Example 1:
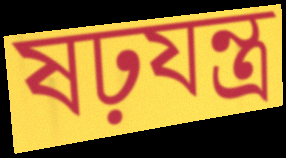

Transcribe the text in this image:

ষঢ়যন্ত্র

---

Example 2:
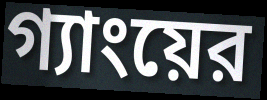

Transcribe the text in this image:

গ্যাংয়ের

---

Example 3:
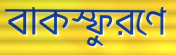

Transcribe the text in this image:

বাকস্ফুরণে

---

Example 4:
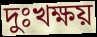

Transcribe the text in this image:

দুঃখক্ষয়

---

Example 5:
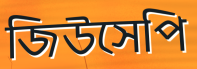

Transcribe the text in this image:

জিউসেপি